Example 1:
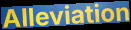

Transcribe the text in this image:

Alleviation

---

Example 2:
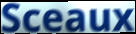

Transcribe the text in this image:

Sceaux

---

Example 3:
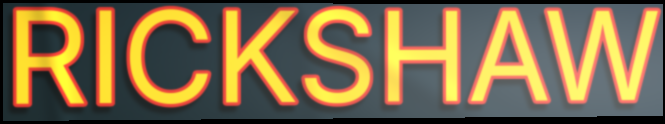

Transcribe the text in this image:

RICKSHAW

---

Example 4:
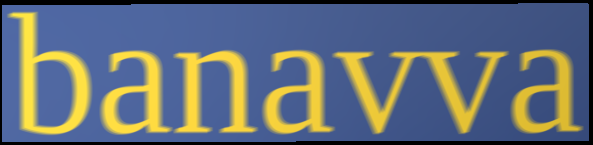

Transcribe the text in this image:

banavva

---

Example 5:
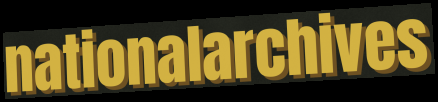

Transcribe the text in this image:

nationalarchives